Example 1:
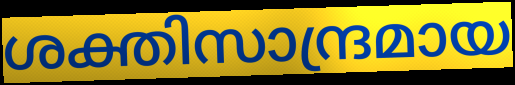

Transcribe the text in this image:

ശക്തിസാന്ദ്രമായ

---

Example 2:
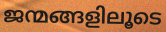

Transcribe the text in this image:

ജന്മങ്ങളിലൂടെ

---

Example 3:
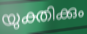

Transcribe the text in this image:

യുക്തിക്കും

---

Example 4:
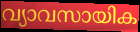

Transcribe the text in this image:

വ്യാവസായിക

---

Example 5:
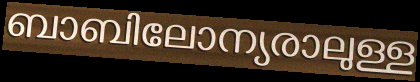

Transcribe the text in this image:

ബാബിലോന്യരാലുള്ള